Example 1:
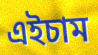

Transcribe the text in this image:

এইচাম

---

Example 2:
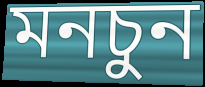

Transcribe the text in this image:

মনচুন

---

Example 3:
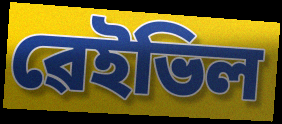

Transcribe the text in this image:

ৱেইভিল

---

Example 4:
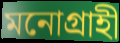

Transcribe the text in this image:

মনোগ্ৰাহী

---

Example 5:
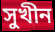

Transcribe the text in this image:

সুখীন